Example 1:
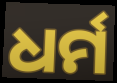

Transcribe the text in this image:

ଧର୍ମ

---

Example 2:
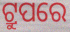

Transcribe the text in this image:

ଟ୍ରୁପରେ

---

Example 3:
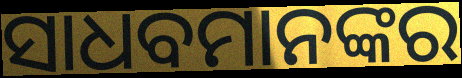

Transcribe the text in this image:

ସାଧବମାନଙ୍କର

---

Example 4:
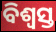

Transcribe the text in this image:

ବିଶ୍ୱସ୍ତ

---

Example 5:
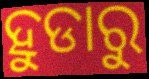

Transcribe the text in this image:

ହୁଡାରୁ